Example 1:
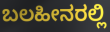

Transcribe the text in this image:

ಬಲಹೀನರಲ್ಲಿ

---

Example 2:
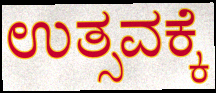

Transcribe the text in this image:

ಉತ್ಸವಕ್ಕೆ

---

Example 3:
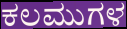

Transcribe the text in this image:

ಕಲಮುಗಳ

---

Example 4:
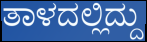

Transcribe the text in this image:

ತಾಳದಲ್ಲಿದ್ದು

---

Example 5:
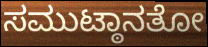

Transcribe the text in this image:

ಸಮುಟ್ಠಾನತೋ